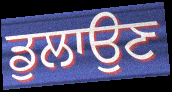
ਡੁਲਾਉਣ